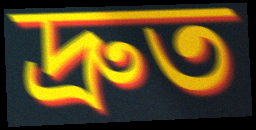
দ্ৰুত